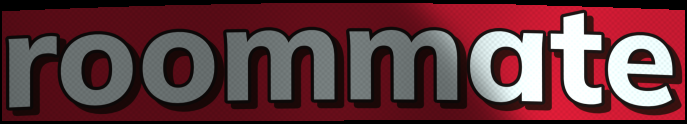
roommate